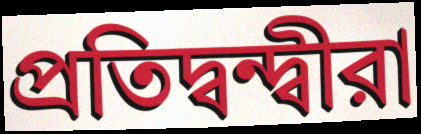
প্রতিদ্বন্দ্বীরা